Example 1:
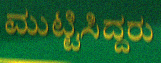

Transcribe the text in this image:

ಮುಟ್ಟಿಸಿದ್ದರು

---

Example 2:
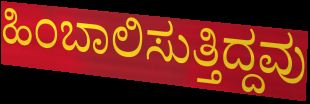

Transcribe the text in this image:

ಹಿಂಬಾಲಿಸುತ್ತಿದ್ದವು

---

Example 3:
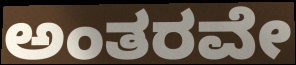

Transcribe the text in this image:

ಅಂತರವೇ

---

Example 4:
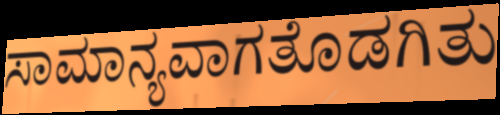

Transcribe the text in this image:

ಸಾಮಾನ್ಯವಾಗತೊಡಗಿತು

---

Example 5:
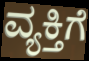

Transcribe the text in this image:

ವ್ಯಕ್ತಿಗೆ